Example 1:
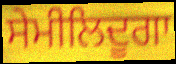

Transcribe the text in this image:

ਸੇਮੀਲਿਦੂਗਾ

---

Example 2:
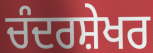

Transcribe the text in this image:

ਚੰਦਰਸ਼ੇਖਰ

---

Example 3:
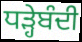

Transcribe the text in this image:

ਧੜ੍ਹੇਬੰਦੀ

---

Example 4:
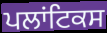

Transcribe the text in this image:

ਪਲਾਂਟਿਕਸ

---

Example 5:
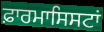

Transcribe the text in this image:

ਫ਼ਾਰਮਾਸਿਸਟਾਂ